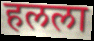
हलला